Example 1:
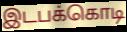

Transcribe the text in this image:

இடபக்கொடி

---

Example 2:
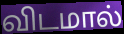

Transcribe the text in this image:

விடமால்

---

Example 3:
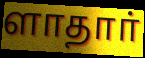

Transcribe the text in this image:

ளாதார்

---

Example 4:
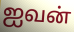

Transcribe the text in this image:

ஐவன்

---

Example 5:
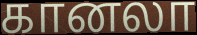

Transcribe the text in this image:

கானலா